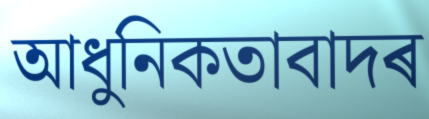
আধুনিকতাবাদৰ